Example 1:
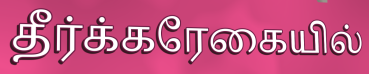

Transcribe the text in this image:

தீர்க்கரேகையில்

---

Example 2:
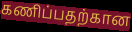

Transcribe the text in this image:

கணிப்பதற்கான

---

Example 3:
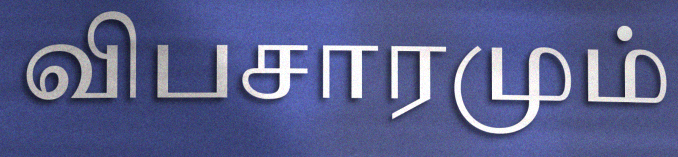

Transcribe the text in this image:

விபசாரமும்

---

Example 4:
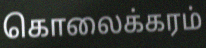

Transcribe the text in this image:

கொலைக்கரம்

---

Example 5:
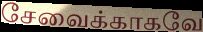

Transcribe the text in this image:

சேவைக்காகவே